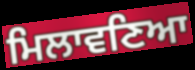
ਮਿਲਾਵਣਿਆ